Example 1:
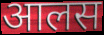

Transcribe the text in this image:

आलस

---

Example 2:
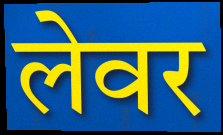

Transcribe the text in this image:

लेवर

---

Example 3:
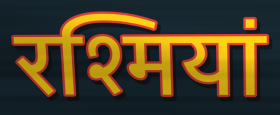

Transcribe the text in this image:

रश्मियां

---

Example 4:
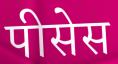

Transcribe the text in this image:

पीसेस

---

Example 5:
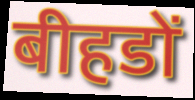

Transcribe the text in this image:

बीहडों